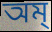
অম্